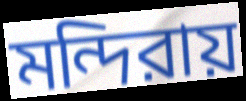
মন্দিরায়